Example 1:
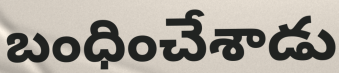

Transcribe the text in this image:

బంధించేశాడు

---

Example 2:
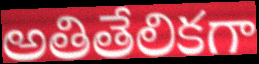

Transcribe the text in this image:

అతితేలికగా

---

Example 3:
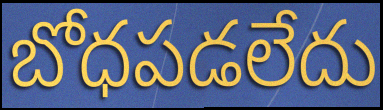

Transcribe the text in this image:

బోధపడలేదు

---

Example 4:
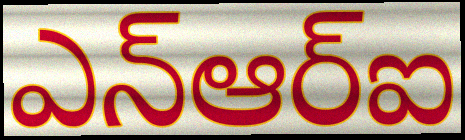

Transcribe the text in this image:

ఎన్ఆర్ఐ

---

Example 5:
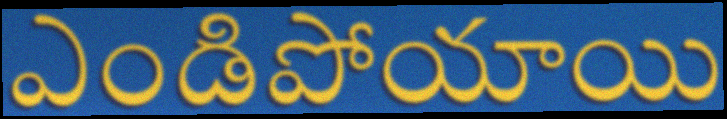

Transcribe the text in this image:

ఎండిపోయాయి